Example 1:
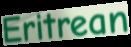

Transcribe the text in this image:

Eritrean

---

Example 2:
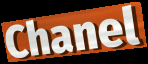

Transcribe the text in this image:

Chanel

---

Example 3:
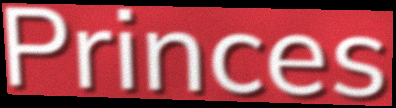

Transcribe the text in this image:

Princes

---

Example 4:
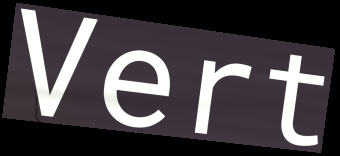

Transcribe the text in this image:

Vert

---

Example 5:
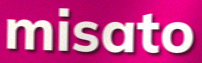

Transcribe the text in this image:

misato